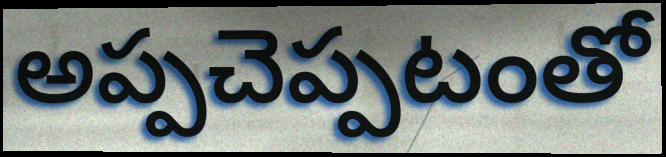
అప్పచెప్పటంతో